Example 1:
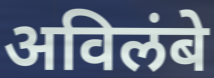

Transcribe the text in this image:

अविलंबे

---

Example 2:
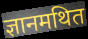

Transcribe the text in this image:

ज्ञानमथित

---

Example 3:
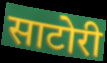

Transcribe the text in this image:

साटोरी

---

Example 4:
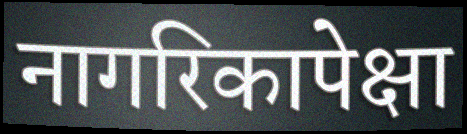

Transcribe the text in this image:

नागरिकापेक्षा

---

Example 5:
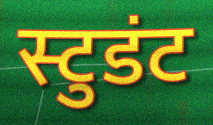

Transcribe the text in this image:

स्टुडंट